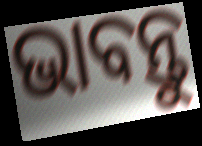
ଭାବନ୍ତୁ